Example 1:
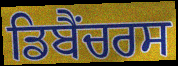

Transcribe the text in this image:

ਡਿਬੈਂਚਰਸ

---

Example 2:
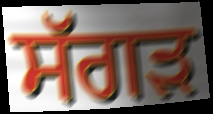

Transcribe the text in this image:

ਸੱਗੜ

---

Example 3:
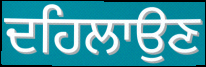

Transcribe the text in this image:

ਦਹਿਲਾਉਣ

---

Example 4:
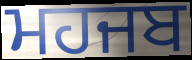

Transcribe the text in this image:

ਮਹਜਬ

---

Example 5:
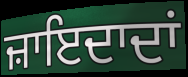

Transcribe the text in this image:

ਜ਼ਾਇਦਾਦਾਂ